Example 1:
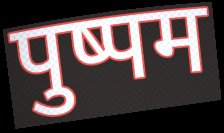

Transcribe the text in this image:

पुष्पम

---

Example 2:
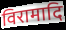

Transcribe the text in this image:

विरामादि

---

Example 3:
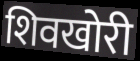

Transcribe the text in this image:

शिवखोरी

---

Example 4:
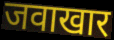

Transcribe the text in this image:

जवाखार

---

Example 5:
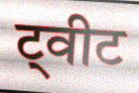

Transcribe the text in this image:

ट्‍वीट